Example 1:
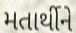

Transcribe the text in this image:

મતાર્થીને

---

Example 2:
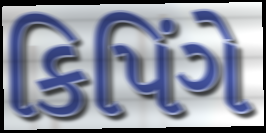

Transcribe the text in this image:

કિપિંગે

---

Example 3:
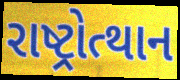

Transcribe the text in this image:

રાષ્ટ્રોત્થાન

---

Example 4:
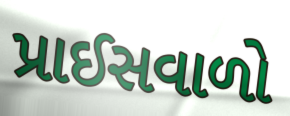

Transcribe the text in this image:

પ્રાઈસવાળો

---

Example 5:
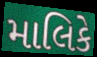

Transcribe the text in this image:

માલિકે